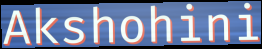
Akshohini